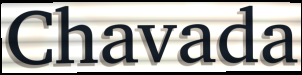
Chavada